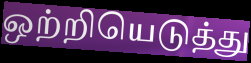
ஒற்றியெடுத்து